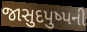
જાસુદપુષ્પની